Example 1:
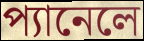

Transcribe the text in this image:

প্যানেলে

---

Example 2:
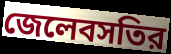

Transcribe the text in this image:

জেলেবসতির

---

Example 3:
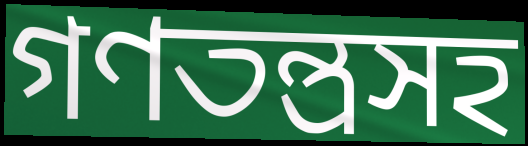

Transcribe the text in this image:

গণতন্ত্রসহ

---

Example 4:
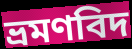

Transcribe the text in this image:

ভ্রমণবিদ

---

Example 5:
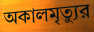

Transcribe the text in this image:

অকালমৃত্যুর